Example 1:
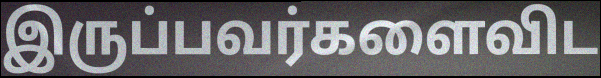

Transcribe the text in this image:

இருப்பவர்களைவிட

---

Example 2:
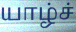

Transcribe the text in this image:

யாழ்ச்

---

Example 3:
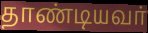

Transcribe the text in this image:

தாண்டியவர்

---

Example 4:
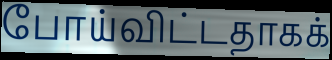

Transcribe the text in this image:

போய்விட்டதாகக்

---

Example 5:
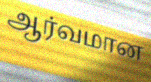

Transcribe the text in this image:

ஆர்வமான